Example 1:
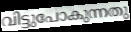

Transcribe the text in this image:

വിട്ടുപോകുന്നതു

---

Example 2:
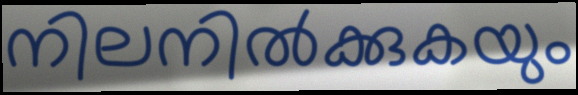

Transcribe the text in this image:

നിലനിൽക്കുകയും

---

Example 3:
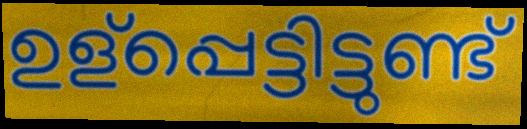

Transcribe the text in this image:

ഉള്പ്പെട്ടിട്ടുണ്ട്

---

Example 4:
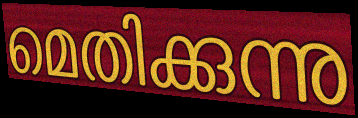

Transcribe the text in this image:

മെതിക്കുന്നു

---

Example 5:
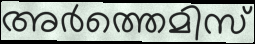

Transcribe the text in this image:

അർത്തെമിസ്